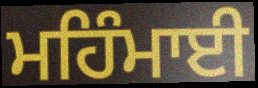
ਮਹਿੰਮਾਈ